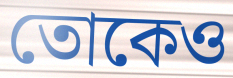
তোকেও